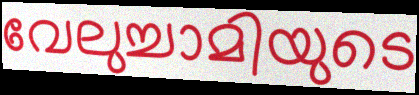
വേലുച്ചാമിയുടെ